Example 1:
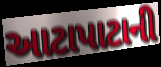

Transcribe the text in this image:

આટાપાટાની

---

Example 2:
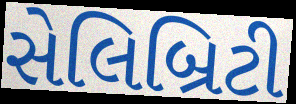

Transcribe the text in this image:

સેલિબ્રિટી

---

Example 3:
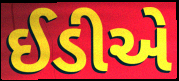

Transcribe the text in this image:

ઈડીએ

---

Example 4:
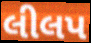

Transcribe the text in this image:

લીલપ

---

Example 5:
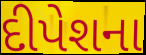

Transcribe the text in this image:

દીપેશના